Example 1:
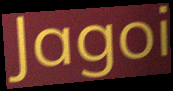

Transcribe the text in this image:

Jagoi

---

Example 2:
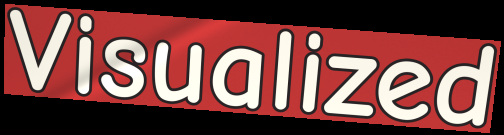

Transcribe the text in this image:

Visualized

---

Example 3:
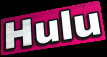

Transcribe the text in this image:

Hulu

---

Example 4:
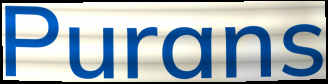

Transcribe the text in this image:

Purans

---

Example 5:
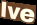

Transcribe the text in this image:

Ive